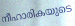
നീഹാരികയുടെ